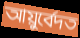
আয়ুৰ্বেদত